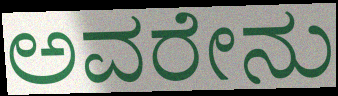
ಅವರೇನು